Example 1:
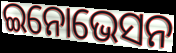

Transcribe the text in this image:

ଇନୋଭେସନ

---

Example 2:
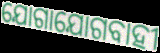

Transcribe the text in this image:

ଯୋଗାଯୋଗବାହୀ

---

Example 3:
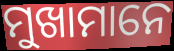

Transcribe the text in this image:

ମୁଖାମାନେ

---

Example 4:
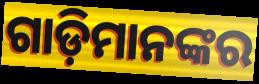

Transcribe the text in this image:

ଗାଡ଼ିମାନଙ୍କର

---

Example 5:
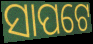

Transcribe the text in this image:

ସାପଟେ